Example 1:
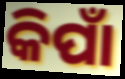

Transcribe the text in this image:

କିପାଁ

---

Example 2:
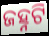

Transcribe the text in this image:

ଜହ୍ନଟି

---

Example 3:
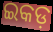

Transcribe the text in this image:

ଇକଡ଼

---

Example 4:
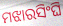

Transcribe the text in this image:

ମଝାରସିଂଘି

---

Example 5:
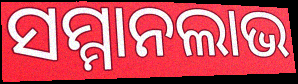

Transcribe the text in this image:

ସମ୍ମାନଲାଭ